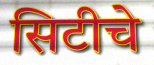
सिटीचे